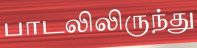
பாடலிலிருந்து